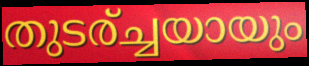
തുടര്ച്ചയായും